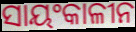
ସାୟଂକାଳୀନ